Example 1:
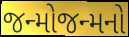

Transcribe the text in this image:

જન્મોજન્મનો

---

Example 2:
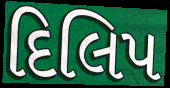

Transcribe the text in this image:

દિલિપ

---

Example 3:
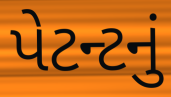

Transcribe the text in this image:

પેટન્ટનું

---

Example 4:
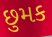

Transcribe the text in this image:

છુમક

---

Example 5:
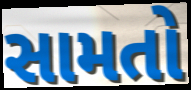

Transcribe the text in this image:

સામતો